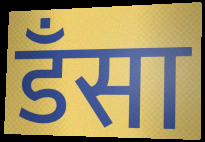
डँसा